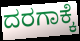
ದರಗಾಕ್ಕೆ